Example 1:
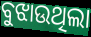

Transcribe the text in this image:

ବୁଝାଉଥିଲା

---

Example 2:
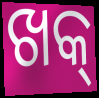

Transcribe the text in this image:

ଖକ୍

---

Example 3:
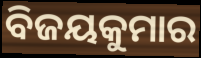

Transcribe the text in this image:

ବିଜୟକୁମାର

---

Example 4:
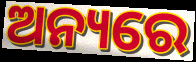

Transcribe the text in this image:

ଅନ୍ୟରେ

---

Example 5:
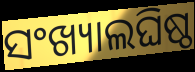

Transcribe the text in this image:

ସଂଖ୍ୟାଲଘିଷ୍ଠ